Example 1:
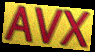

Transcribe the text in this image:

AVX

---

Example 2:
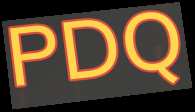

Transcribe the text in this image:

PDQ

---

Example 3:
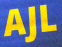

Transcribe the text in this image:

AJL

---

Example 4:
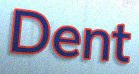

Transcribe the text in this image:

Dent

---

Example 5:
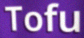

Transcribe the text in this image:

Tofu